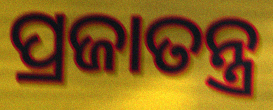
ପ୍ରଜାତନ୍ତ୍ର